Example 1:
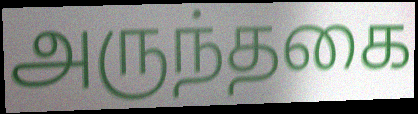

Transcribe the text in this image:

அருந்தகை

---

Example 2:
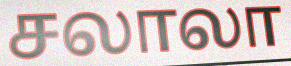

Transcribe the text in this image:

சலாலா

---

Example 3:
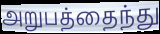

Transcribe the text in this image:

அறுபத்தைந்து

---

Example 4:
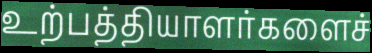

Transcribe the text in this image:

உற்பத்தியாளர்களைச்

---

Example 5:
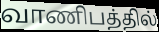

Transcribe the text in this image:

வாணிபத்தில்